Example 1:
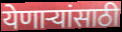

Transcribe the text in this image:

येणाऱ्यांसाठी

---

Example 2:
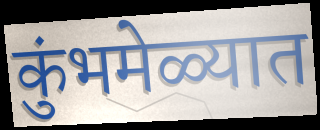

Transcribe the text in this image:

कुंभमेळ्यात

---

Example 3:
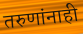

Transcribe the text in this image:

तरुणांनाही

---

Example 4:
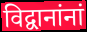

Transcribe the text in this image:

विद्वानांनां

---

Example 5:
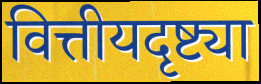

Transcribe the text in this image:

वित्तीयदृष्ट्या